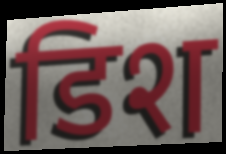
डिश